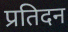
प्रतिदन